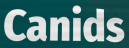
Canids